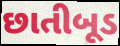
છાતીબૂડ